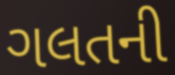
ગલતની